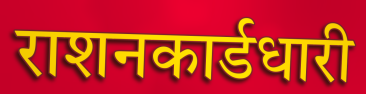
राशनकार्डधारी